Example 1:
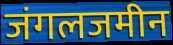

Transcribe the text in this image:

जंगलजमीन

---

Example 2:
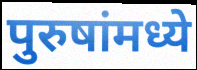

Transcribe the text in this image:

पुरुषांमध्ये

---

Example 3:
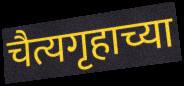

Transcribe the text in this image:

चैत्यगृहाच्या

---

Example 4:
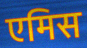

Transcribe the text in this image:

एमिस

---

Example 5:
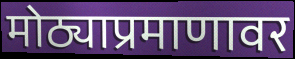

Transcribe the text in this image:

मोठ्याप्रमाणावर